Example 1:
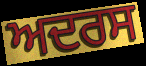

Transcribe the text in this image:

ਅਦਰਸ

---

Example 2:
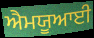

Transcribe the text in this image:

ਐਮਯੂਆਈ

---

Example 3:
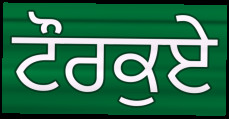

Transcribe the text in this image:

ਟੌਰਕੁਏ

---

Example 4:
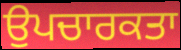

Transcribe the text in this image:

ਉਪਚਾਰਕਤਾ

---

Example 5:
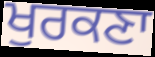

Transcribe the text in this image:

ਖੁਰਕਣਾ